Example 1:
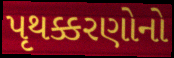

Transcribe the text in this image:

પૃથક્કરણોનો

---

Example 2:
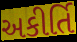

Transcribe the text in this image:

અકીર્તિ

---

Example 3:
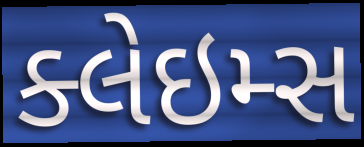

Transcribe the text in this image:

ક્લેઇમ્સ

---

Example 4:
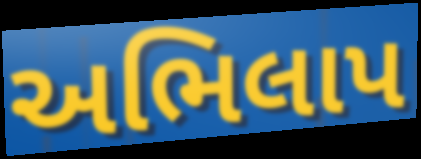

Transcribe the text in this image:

અભિલાપ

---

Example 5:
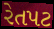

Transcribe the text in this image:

રેતપટ